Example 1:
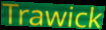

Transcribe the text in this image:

Trawick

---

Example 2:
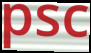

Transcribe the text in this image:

psc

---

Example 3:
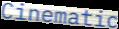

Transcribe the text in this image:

Cinematic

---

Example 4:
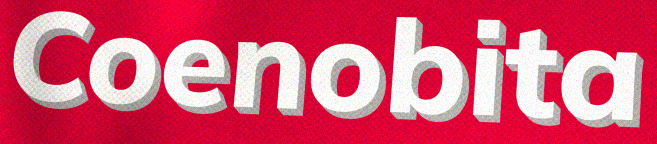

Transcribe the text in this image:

Coenobita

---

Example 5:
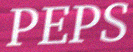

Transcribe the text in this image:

PEPS